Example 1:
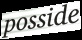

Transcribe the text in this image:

posside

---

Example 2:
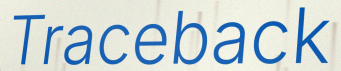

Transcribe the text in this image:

Traceback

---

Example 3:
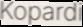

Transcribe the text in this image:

Kopardi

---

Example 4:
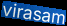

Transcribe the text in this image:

virasam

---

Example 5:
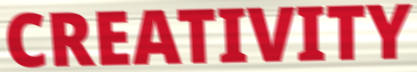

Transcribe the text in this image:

CREATIVITY